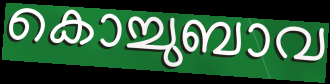
കൊച്ചുബാവ